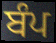
ਬੰਪ